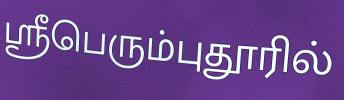
ஸ்ரீபெரும்புதூரில்